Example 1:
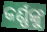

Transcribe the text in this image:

କର୍ଣ୍ଣଙ୍କୁ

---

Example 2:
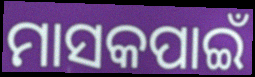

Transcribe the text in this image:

ମାସକପାଇଁ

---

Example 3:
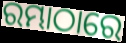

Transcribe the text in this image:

ରମ୍ଭାଠାରେ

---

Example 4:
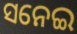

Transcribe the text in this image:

ସନେଇ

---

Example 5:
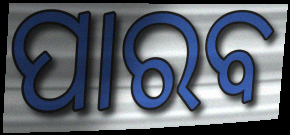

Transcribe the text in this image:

ପାରବ